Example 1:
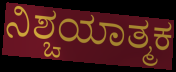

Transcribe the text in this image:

ನಿಶ್ಚಯಾತ್ಮಕ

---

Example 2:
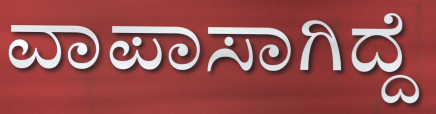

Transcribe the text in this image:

ವಾಪಾಸಾಗಿದ್ದೆ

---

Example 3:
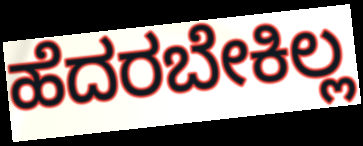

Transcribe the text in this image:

ಹೆದರಬೇಕಿಲ್ಲ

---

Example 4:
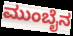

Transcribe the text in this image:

ಮುಂಬೈನ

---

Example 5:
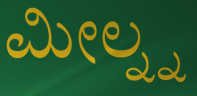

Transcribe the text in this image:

ಮೀಲ್ನ್ನ